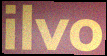
ilvo